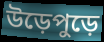
উড়েপুড়ে